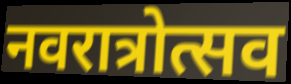
नवरात्रोत्सव